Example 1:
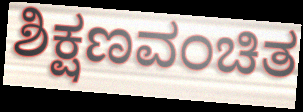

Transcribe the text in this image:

ಶಿಕ್ಷಣವಂಚಿತ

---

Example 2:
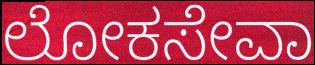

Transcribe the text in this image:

ಲೋಕಸೇವಾ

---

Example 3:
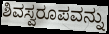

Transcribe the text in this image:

ಶಿವಸ್ವರೂಪವನ್ನು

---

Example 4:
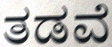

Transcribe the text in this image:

ತಡವೆ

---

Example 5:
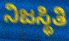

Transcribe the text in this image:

ನಿಜಸ್ಥಿತಿ